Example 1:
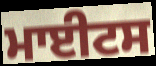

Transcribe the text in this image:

ਮਾਈਟਸ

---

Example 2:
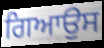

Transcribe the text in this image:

ਗਿਆਉਸ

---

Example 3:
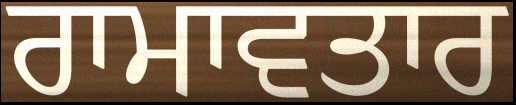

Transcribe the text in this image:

ਰਾਮਾਵਤਾਰ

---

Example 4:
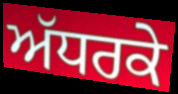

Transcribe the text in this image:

ਅੱਧਰਕੇ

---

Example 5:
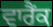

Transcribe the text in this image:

ਵਾਰੈਂਕ